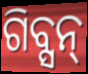
ଗିବ୍ସନ୍